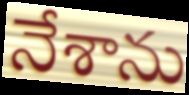
నేశాను